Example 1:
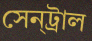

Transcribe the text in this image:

সেন্‌ট্রাল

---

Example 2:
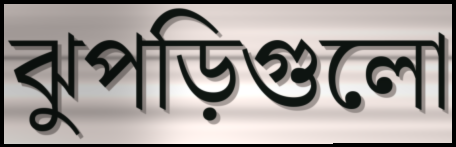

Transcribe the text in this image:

ঝুপড়িগুলো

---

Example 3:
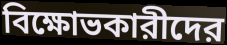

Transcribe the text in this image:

বিক্ষোভকারীদের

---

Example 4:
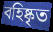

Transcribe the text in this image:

বহিষ্কৃত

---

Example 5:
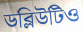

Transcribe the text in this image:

ডব্লিউটিও